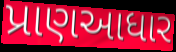
પ્રાણઆધાર